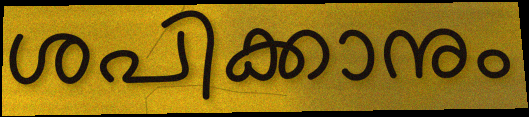
ശപിക്കാനും